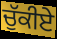
ਚੁੱਕੀਏ